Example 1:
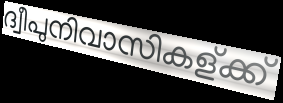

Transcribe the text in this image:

ദ്വീപുനിവാസികള്ക്ക്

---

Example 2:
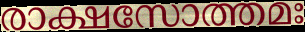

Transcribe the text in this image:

രാക്ഷസോത്തമഃ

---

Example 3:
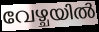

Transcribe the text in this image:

വേഴ്ചയിൽ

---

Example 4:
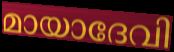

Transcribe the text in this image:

മായാദേവി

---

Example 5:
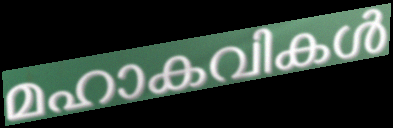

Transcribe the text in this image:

മഹാകവികൾ